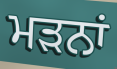
ਮੜਨਾਂ